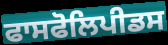
ਫਾਸਫੋਲਿਪੀਡਸ